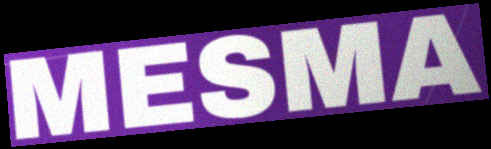
MESMA